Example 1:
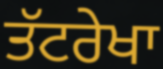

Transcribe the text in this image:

ਤੱਟਰੇਖਾ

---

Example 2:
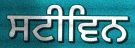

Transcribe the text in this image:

ਸਟੀਵਿਨ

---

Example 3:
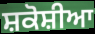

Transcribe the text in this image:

ਸ਼ਕੋਸ਼ੀਆ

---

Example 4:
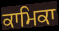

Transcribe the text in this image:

ਕਾਮਿਕਾ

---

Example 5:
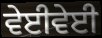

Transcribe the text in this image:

ਵੇਈਵੇਈ